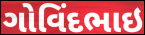
ગોવિંદભાઇ